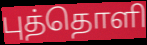
புத்தொளி